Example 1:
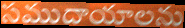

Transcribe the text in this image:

సముదాయాలను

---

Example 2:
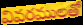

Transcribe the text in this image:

వివరములతో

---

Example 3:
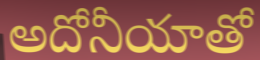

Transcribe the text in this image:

అదోనీయాతో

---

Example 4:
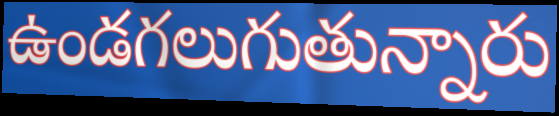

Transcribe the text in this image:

ఉండగలుగుతున్నారు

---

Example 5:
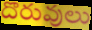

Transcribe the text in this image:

దొరువులు